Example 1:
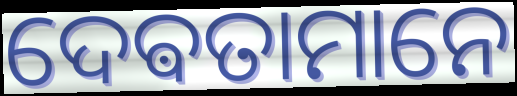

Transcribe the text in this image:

ଦେଵତାମାନେ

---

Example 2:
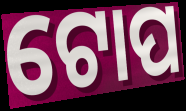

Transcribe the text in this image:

ଟୋପ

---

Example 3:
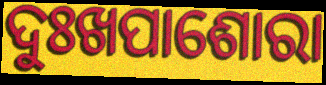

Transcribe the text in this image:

ଦୁଃଖପାଶୋରା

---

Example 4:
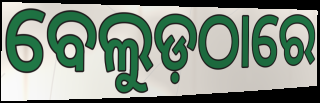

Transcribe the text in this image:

ବେଲୁଡ଼ଠାରେ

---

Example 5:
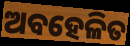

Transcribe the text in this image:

ଅବହେଳିତ